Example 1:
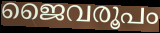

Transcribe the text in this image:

ജൈവരൂപം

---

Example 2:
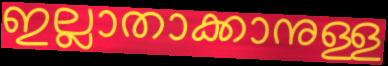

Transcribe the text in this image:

ഇല്ലാതാക്കാനുള്ള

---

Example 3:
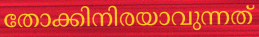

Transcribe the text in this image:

തോക്കിനിരയാവുന്നത്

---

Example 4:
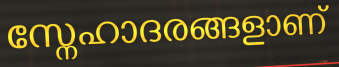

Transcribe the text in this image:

സ്നേഹാദരങ്ങളാണ്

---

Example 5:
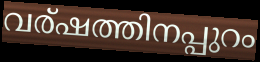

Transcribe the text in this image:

വര്ഷത്തിനപ്പുറം